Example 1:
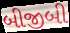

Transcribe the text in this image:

બીજીબી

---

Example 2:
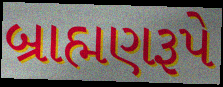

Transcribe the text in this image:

બ્રાહ્મણરૂપે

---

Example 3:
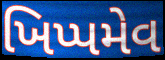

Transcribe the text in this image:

ખિપ્પમેવ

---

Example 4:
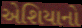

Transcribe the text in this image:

એશિયાનો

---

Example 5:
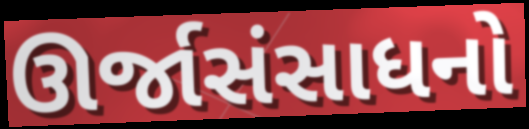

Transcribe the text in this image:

ઊર્જાસંસાધનો